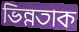
ভিন্নতাক